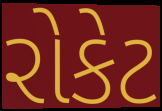
રોકેટ